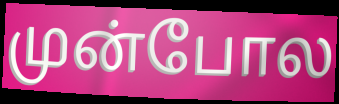
முன்போல